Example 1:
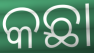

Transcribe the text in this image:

କଛା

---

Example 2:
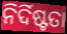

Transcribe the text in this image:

ନିର୍ଦିଷ୍ଟତା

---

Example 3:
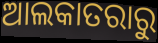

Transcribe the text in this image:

ଆଲକାତରାରୁ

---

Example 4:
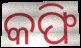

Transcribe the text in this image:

କଫି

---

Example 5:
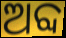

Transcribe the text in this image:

ଅବ୍ଦ